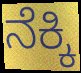
ನೆಕ್ಕಿ